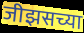
जीझसच्या